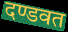
दण्‍डवत